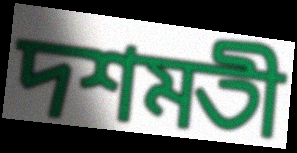
দশমতী